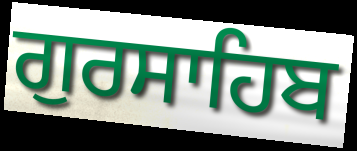
ਗੁਰਸਾਹਿਬ